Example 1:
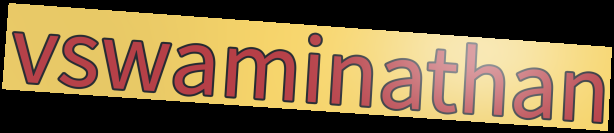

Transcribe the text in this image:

vswaminathan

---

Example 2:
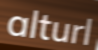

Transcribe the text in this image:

alturl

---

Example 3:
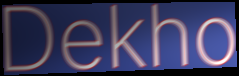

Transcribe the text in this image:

Dekho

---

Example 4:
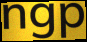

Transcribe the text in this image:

ngp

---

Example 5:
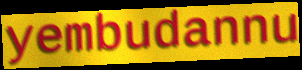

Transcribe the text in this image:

yembudannu